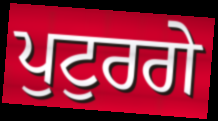
ਪੁਟੁਰਗੇ